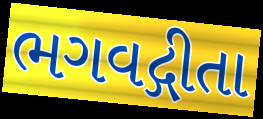
ભગવદ્ગીતા